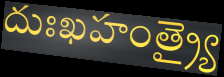
దుఃఖహంత్ర్యై